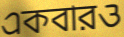
একবারও